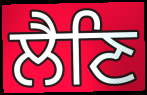
ਲੈਣਿ